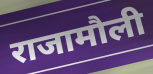
राजामौली